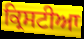
ਕ੍ਰਿਸਟੀਆ